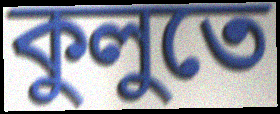
কুলুতে